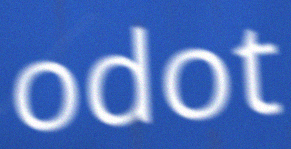
odot